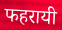
फहरायी